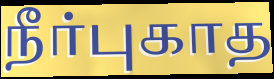
நீர்புகாத